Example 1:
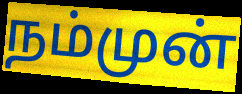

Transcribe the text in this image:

நம்முன்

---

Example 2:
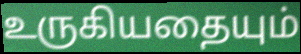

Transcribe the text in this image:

உருகியதையும்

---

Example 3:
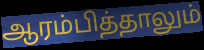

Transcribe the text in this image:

ஆரம்பித்தாலும்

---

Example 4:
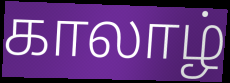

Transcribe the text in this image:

காலாழ்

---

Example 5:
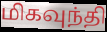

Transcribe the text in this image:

மிகவுந்தி